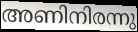
അണിനിരന്നു